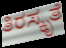
ತಿರಸ್ಕೃತೆ